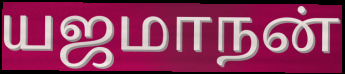
யஜமாநன்